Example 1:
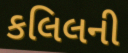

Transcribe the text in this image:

કલિલની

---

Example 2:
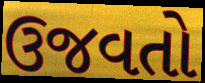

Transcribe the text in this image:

ઉજવતો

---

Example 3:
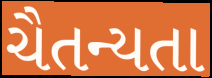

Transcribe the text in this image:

ચૈતન્યતા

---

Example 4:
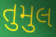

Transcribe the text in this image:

તુમુલ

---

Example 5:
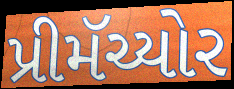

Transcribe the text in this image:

પ્રીમૅચ્યોર